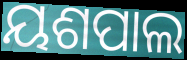
ୟଶପାଲ